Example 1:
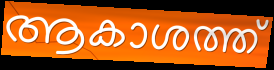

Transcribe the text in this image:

ആകാശത്ത്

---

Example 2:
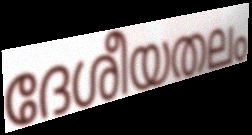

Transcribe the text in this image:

ദേശീയതലം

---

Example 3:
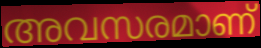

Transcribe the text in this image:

അവസരമാണ്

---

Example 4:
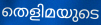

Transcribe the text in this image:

തെളിമയുടെ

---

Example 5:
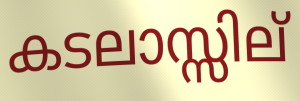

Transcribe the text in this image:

കടലാസ്സില്